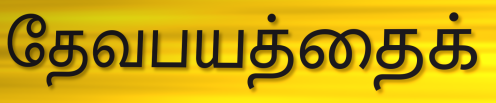
தேவபயத்தைக்